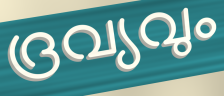
ദ്രവ്യവും